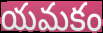
యమకం